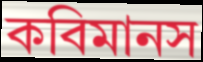
কবিমানস